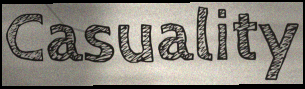
Casuality